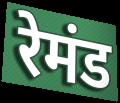
रेमंड